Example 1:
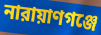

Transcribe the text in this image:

নারায়াণগঞ্জে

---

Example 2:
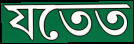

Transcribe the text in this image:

যতেত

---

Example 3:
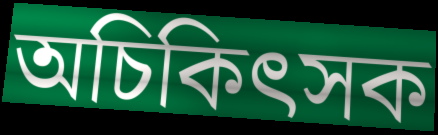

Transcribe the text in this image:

অচিকিৎসক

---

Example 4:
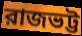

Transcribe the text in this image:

রাজভট্ট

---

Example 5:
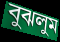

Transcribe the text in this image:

বুঝলুম